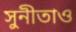
সুনীতাও